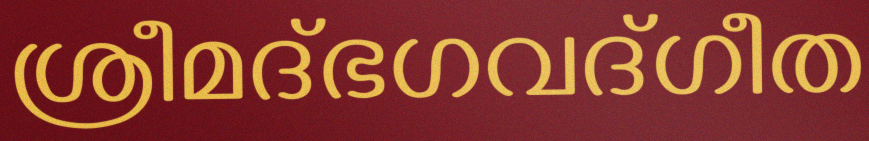
ശ്രീമദ്ഭഗവദ്ഗീത